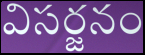
విసర్జనం